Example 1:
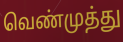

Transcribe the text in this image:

வெண்முத்து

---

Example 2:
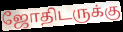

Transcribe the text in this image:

ஜோதிடருக்கு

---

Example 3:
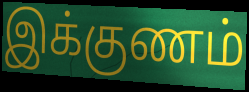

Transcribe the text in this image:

இக்குணம்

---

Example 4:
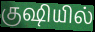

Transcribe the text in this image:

குஷியில்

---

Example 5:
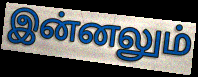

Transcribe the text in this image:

இன்னலும்